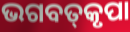
ଭଗବତ୍‌କୃପା